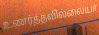
உணர்த்தவில்லையா